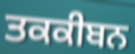
ਤਕਕੀਬਨ